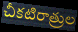
చీకటిరాత్రుల